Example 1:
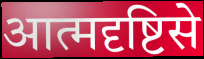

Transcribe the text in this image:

आत्मदृष्टिसे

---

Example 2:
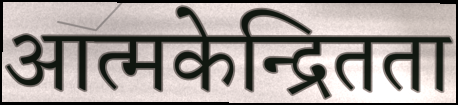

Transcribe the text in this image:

आत्मकेन्द्रितता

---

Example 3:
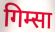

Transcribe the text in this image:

गिम्सा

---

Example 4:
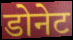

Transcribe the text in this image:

डोनेट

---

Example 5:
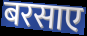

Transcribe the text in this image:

बरसाए